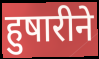
हुषारीने